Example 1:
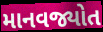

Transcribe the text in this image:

માનવજ્યોત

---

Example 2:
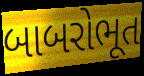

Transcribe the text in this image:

બાબરોભૂત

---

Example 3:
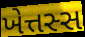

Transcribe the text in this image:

ખેત્તસ્સ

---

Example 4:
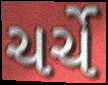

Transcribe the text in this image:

ચર્ચે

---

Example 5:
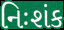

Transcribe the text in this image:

નિઃશંક